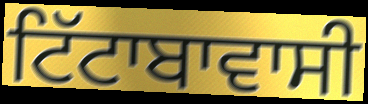
ਟਿੱਟਾਬਾਵਾਸੀ